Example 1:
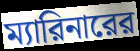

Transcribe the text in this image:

ম্যারিনারের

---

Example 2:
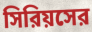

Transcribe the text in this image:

সিরিয়সের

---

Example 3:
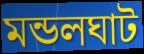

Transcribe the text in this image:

মন্ডলঘাট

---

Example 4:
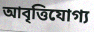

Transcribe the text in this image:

আবৃত্তিযোগ্য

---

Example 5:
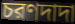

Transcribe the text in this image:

চরণদাদা